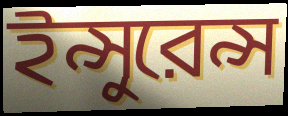
ইন্সুরেন্স